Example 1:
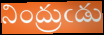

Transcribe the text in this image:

నింద్రుఁడు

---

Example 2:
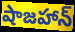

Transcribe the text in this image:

షాజహాన్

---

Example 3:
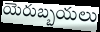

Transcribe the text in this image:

యెరుబ్బయలు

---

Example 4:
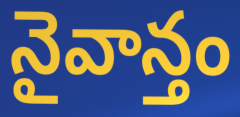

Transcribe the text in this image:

నైవాన్తం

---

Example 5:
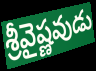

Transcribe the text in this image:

శ్రీవైష్ణవుడు